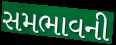
સમભાવની